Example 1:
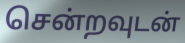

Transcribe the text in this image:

சென்றவுடன்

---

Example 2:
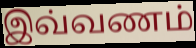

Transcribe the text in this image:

இவ்வணம்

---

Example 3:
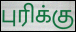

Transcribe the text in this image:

புரிக்கு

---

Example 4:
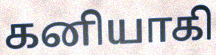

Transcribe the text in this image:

கனியாகி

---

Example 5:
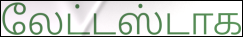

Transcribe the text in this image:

லேட்டஸ்டாக